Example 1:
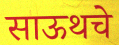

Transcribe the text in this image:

साऊथचे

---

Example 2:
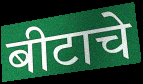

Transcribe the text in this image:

बीटाचे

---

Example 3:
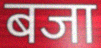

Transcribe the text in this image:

बजा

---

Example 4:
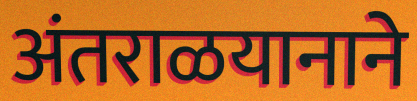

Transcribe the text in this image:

अंतराळयानाने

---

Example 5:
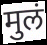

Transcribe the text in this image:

मुलं